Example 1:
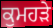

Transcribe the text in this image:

ਕੁਮਹੜੇ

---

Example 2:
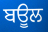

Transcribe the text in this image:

ਬਊਲ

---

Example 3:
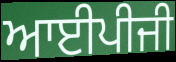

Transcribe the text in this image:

ਆਈਪੀਜੀ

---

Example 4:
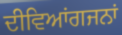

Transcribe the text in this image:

ਦੀਵਿਆਂਗਜਨਾਂ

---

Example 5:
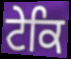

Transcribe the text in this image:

ਟੇਕਿ